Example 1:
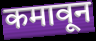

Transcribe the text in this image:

कमावून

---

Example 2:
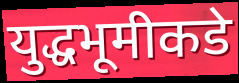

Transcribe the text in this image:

युद्धभूमीकडे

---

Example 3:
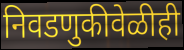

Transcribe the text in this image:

निवडणुकीवेळीही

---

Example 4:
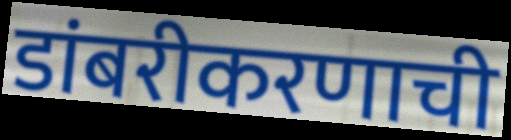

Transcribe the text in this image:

डांबरीकरणाची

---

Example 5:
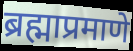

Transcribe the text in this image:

ब्रह्माप्रमाणे